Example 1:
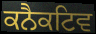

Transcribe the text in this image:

ਕਨੈਕਟਿਵ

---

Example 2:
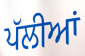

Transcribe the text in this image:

ਪੱਲੀਆਂ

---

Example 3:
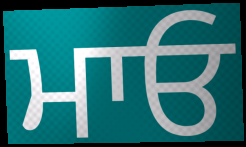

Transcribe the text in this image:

ਮਾਓ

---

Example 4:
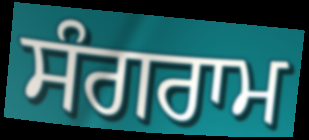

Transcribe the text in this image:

ਸੰਗਰਾਮ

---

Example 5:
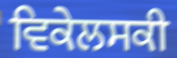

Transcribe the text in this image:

ਵਿਕੇਲਸਕੀ